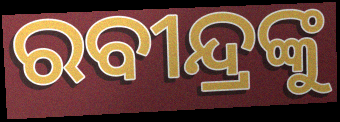
ରବୀନ୍ଦ୍ରଙ୍କୁ